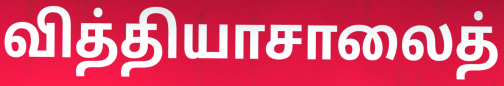
வித்தியாசாலைத்